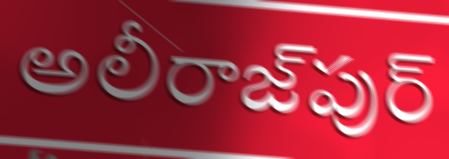
అలీరాజ్‌పుర్